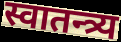
स्वातन्त्र्य